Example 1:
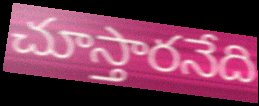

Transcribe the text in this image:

చూస్తారనేది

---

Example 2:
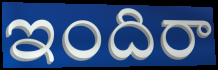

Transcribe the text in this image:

ఇందిరా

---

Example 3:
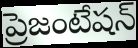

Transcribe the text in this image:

ప్రెజంటేషన్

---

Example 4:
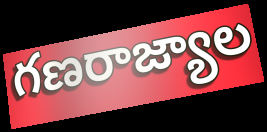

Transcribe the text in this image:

గణరాజ్యాల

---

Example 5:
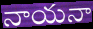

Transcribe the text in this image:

నాయనా